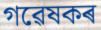
গৱেষকৰ